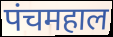
पंचमहाल